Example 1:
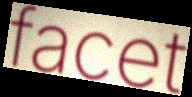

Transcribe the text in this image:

facet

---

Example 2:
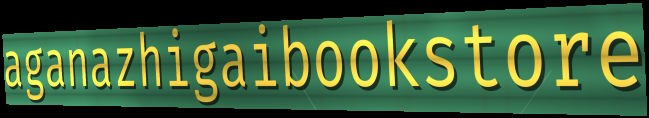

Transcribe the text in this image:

aganazhigaibookstore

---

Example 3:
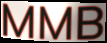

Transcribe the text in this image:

MMB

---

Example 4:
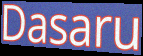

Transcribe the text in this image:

Dasaru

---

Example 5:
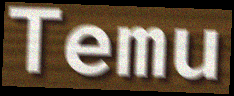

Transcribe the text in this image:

Temu